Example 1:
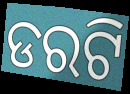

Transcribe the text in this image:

ଡରଟି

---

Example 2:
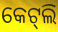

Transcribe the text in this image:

କେଟ୍‌ଲି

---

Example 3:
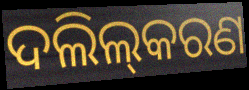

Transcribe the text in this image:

ଦଲିଲ୍‌କରଣ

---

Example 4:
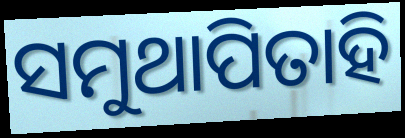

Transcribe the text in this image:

ସମୁଥାପିତାହି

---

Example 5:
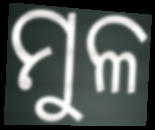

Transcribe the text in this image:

ମୁଳ